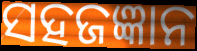
ସହଜଜ୍ଞାନ